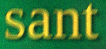
sant